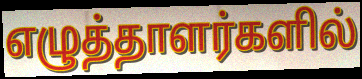
எழுத்தாளர்களில்